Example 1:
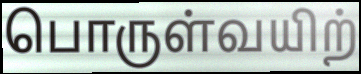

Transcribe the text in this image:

பொருள்வயிற்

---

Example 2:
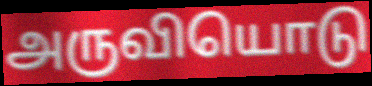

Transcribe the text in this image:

அருவியொடு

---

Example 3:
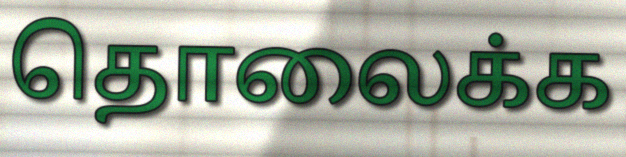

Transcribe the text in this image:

தொலைக்க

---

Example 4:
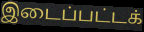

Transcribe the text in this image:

இடைப்பட்டக்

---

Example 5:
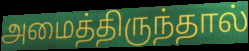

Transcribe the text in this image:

அமைத்திருந்தால்